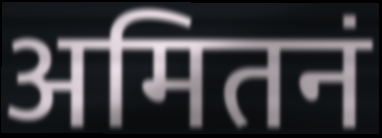
अमितनं